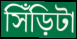
সিঁড়িটা